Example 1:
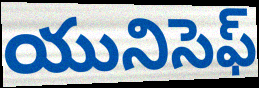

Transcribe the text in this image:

యునిసెఫ్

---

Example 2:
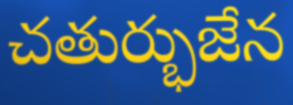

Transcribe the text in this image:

చతుర్భుజేన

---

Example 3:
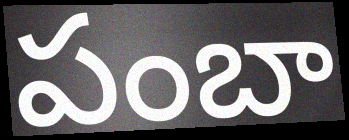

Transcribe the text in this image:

పంబా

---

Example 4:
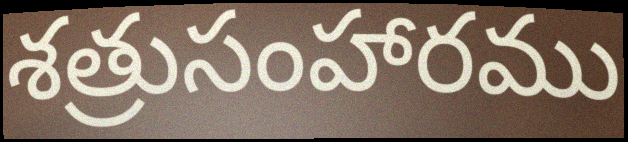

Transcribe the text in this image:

శత్రుసంహారము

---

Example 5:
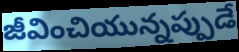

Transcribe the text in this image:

జీవించియున్నప్పుడే